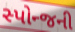
સ્પોન્જની